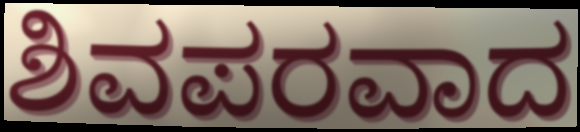
ಶಿವಪರವಾದ